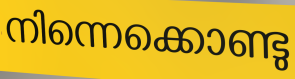
നിന്നെക്കൊണ്ടു